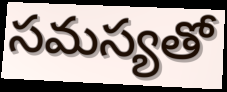
సమస్యతో